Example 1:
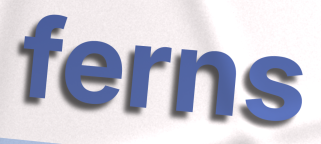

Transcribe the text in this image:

ferns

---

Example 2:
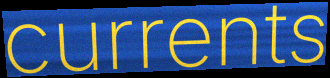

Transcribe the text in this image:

currents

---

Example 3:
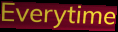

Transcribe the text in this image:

Everytime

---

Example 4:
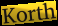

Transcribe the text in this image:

Korth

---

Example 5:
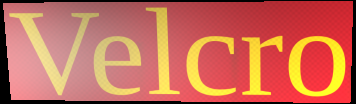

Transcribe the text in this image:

Velcro